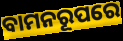
ବାମନରୂପରେ